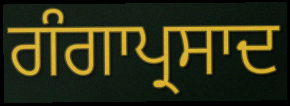
ਗੰਗਾਪ੍ਰਸਾਦ